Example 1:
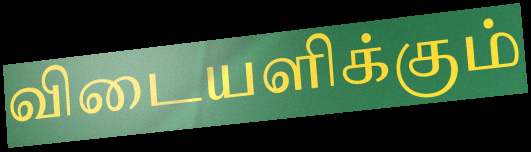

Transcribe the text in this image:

விடையளிக்கும்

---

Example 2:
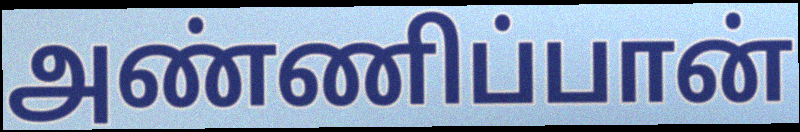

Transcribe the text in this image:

அண்ணிப்பான்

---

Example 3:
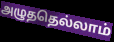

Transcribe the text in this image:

அழுததெல்லாம்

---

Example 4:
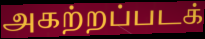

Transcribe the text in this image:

அகற்றப்படக்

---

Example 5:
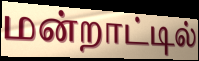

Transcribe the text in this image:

மன்றாட்டில்